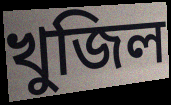
খুজিল